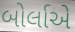
બોર્લાએ